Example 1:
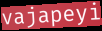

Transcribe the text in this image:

vajapeyi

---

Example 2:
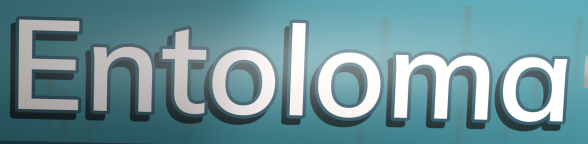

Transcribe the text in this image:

Entoloma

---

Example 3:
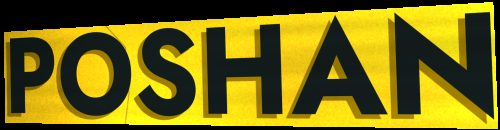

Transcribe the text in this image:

POSHAN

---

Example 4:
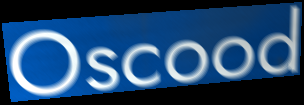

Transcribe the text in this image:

Oscood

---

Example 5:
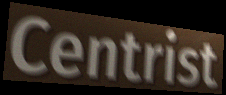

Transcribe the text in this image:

Centrist